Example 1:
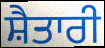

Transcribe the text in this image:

ਸ਼ੈਤਾਰੀ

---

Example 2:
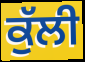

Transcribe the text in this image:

ਕੁੱਲੀ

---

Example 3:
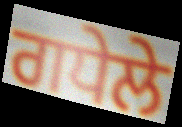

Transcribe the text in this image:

ਗਧੇਲੇ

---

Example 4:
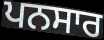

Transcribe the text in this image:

ਪਨਸਾਰ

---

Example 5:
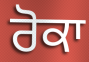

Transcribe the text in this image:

ਰੋਕਾ